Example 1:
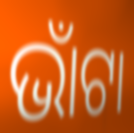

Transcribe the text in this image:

ଭାଁଟା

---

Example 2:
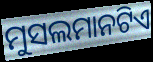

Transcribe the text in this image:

ମୁସଲମାନଟିଏ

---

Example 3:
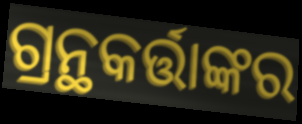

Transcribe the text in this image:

ଗ୍ରନ୍ଥକର୍ତ୍ତାଙ୍କର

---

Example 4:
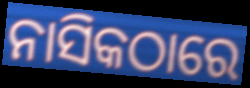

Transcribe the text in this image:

ନାସିକଠାରେ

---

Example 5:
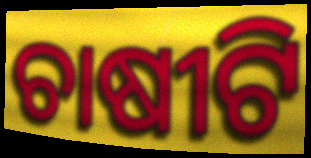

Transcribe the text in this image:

ଚାଷୀଟି